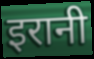
इरानी